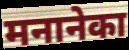
मनानेका